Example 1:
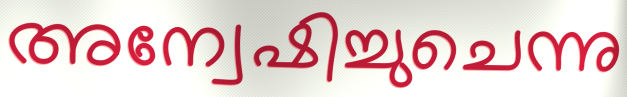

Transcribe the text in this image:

അന്വേഷിച്ചുചെന്നു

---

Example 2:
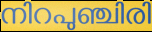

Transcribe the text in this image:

നിറപുഞ്ചിരി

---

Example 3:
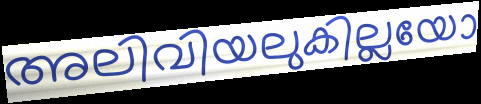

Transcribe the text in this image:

അലിവിയലുകില്ലയോ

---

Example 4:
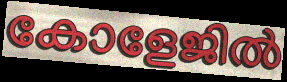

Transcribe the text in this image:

കോളേജിൽ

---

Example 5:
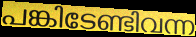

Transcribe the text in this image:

പങ്കിടേണ്ടിവന്ന